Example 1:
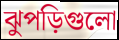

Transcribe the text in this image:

ঝুপড়িগুলো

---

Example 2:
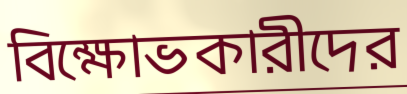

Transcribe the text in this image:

বিক্ষোভকারীদের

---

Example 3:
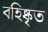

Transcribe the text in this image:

বহিষ্কৃত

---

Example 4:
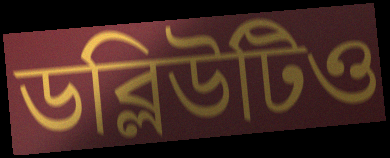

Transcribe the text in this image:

ডব্লিউটিও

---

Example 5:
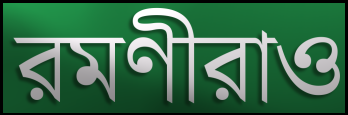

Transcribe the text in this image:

রমণীরাও